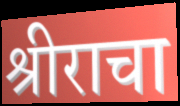
श्रीराचा